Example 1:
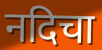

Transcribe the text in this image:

नदिचा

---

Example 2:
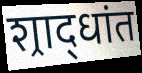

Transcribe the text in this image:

श्राद्धांत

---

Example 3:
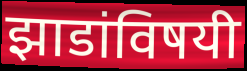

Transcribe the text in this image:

झाडांविषयी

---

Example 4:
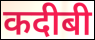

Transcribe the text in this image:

कदीबी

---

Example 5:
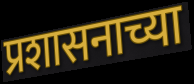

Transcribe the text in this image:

प्रशासनाच्या